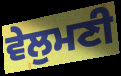
ਵੇਲੁਮਣੀ